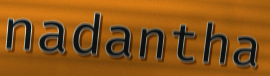
nadantha